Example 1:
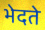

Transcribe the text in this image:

भेदते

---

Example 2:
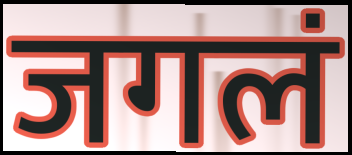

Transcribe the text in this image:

जगलं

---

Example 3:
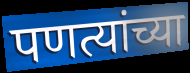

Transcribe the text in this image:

पणत्यांच्या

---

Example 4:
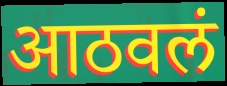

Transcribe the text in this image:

आठवलं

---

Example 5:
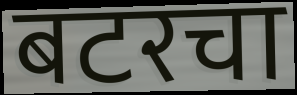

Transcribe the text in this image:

बटरचा